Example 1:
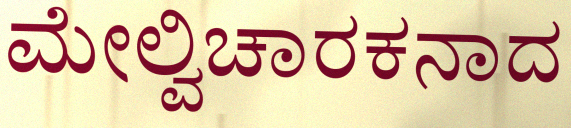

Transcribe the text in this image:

ಮೇಲ್ವಿಚಾರಕನಾದ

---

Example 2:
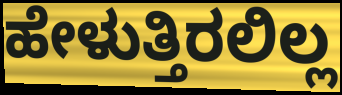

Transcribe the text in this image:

ಹೇಳುತ್ತಿರಲಿಲ್ಲ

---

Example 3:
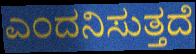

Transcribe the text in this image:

ಎಂದನಿಸುತ್ತದೆ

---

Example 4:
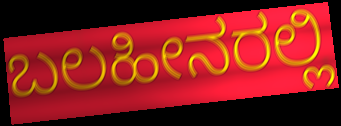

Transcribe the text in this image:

ಬಲಹೀನರಲ್ಲಿ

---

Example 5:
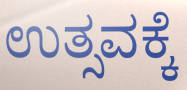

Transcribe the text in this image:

ಉತ್ಸವಕ್ಕೆ